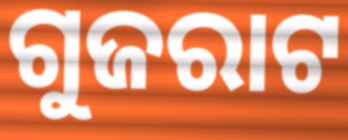
ଗୁଜରାଟ